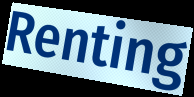
Renting